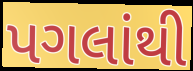
પગલાંથી